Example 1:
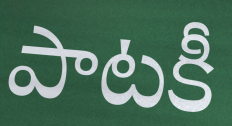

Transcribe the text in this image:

పాటకీ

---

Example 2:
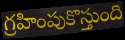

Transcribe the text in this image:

గ్రహింపుకొస్తుంది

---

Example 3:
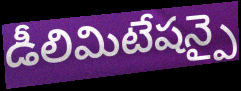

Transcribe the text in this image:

డీలిమిటేషన్పై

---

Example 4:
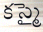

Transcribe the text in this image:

కస్మై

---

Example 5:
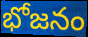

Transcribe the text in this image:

భోజనం